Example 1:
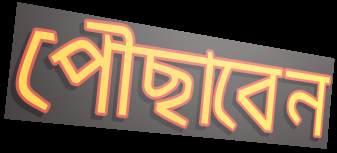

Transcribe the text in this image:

পৌছাবেন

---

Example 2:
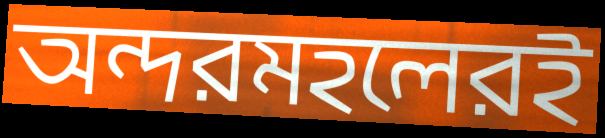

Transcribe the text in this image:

অন্দরমহলেরই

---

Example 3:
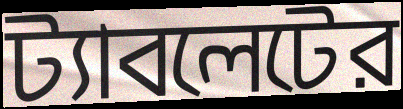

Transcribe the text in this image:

ট্যাবলেটের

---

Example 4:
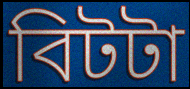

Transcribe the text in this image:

বিটটা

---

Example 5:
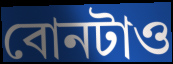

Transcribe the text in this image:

বোনটাও